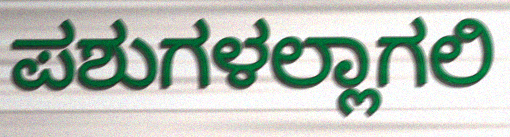
ಪಶುಗಳಲ್ಲಾಗಲಿ